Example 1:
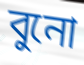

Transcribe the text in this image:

বুনো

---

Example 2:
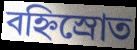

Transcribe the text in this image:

বহ্নিস্রোত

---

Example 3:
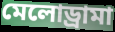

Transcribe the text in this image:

মেলোড্রামা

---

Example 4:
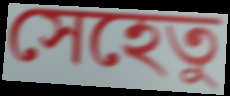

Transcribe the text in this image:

সেহেতু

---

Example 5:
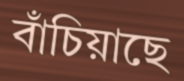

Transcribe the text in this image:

বাঁচিয়াছে